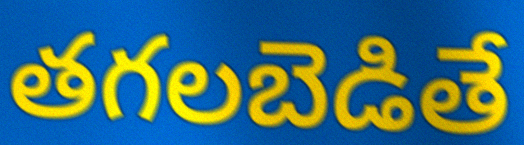
తగలబెడితే